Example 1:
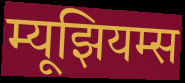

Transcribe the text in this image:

म्यूझियम्स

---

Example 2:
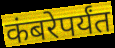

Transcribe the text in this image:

कंबरेपर्यंत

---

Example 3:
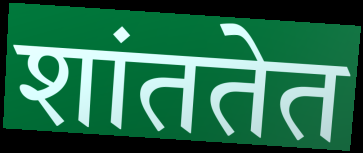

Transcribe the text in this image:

शांततेत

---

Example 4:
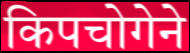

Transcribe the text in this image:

किपचोगेने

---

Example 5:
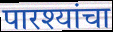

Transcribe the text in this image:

पारश्यांचा